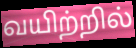
வயிற்றில்